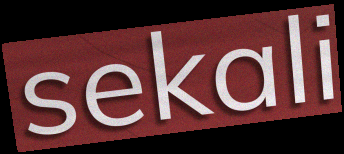
sekali